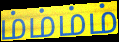
ம்ம்ம்ம்